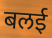
बलई